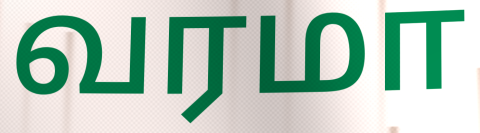
வரமா